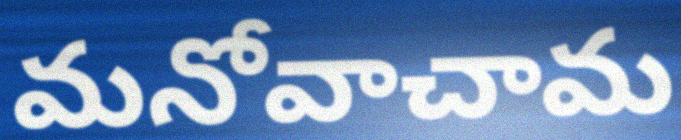
మనోవాచామ